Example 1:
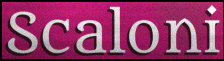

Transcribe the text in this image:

Scaloni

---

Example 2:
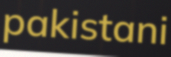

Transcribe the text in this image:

pakistani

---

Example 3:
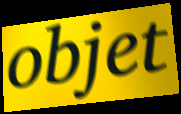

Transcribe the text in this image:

objet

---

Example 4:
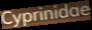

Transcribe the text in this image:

Cyprinidae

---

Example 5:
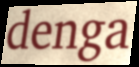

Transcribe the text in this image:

denga